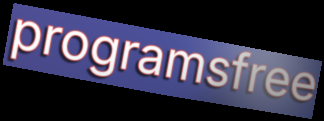
programsfree